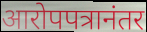
आरोपपत्रानंतर